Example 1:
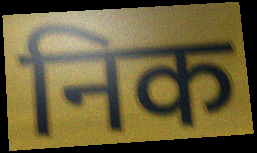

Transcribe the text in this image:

निक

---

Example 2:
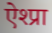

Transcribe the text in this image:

ऐश्प्रा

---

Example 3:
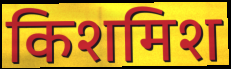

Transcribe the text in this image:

किशमिश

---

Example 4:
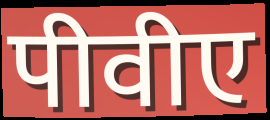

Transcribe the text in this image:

पीवीए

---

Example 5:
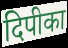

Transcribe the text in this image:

दिपीका